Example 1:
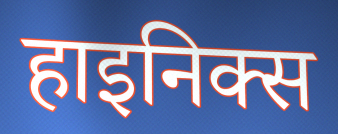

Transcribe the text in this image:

हाइनिक्स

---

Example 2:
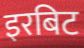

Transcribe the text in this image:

इरबिट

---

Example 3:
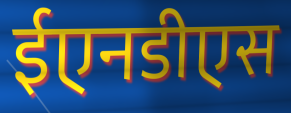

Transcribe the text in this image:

ईएनडीएस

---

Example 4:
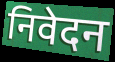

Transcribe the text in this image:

निवेदन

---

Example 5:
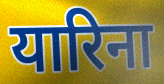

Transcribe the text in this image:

यारिना